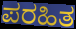
ಪರಹಿತ